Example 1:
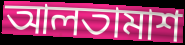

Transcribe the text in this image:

আলতামাশ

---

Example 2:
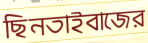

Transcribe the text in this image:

ছিনতাইবাজের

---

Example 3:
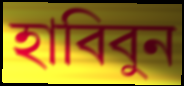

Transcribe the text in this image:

হাবিবুন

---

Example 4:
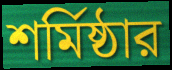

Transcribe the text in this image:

শর্মিষ্ঠার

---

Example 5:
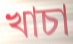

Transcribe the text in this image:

খাচা